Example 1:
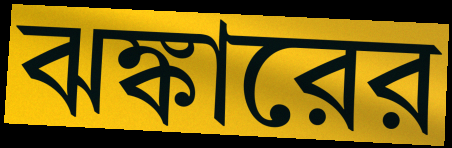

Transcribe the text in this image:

ঝঙ্কারের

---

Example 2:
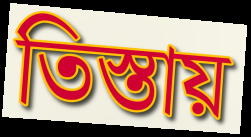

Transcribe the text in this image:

তিস্তায়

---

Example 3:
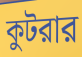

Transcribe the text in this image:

কুটরার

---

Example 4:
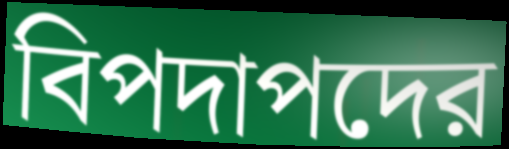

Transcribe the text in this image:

বিপদাপদের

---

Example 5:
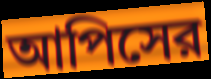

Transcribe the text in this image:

আপিসের